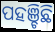
ପହଞ୍ଚିଛି